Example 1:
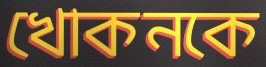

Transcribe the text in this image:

খোকনকে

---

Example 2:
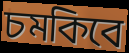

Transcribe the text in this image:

চমকিবে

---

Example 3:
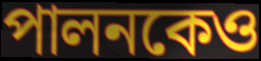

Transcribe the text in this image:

পালনকেও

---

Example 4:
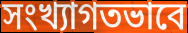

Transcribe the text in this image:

সংখ্যাগতভাবে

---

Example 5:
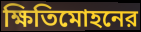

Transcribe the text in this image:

ক্ষিতিমোহনের